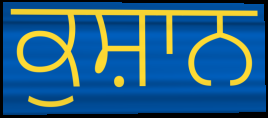
ਕੁਸ਼ਾਨ